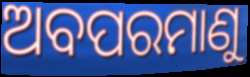
ଅବପରମାଣୁ